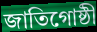
জাতিগোষ্ঠী